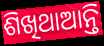
ଶିଖିଥାଆନ୍ତି